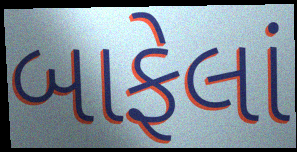
બાફેલાં